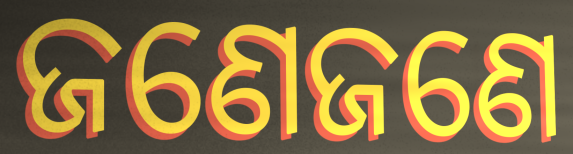
ଜଣେଜଣେ